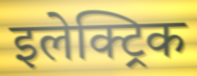
इलेक्ट्रिक